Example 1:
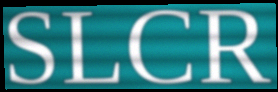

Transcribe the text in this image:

SLCR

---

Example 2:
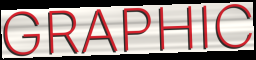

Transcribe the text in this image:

GRAPHIC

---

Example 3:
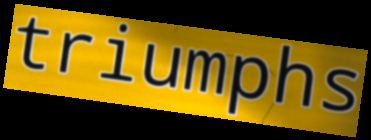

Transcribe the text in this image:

triumphs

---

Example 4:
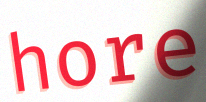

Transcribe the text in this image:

hore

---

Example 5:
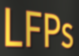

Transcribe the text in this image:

LFPs